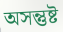
অসন্তুষ্ট